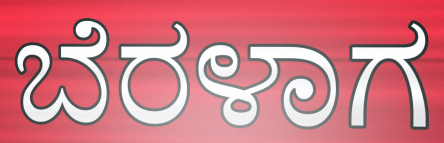
ಬೆರಳಾಗ